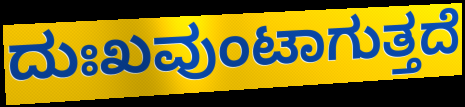
ದುಃಖವುಂಟಾಗುತ್ತದೆ